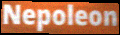
Nepoleon